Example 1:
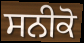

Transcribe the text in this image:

ਸਨੀਕੋ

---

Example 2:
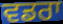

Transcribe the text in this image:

ਵਡਰਾ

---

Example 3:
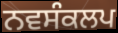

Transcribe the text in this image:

ਨਵਸੰਕਲਪ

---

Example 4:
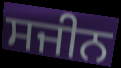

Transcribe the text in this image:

ਸਜੀਨ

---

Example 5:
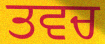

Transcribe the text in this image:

ਤਵਚ